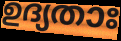
ഉദ്യതാഃ